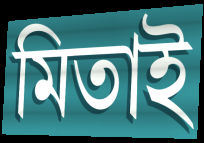
মিতাই